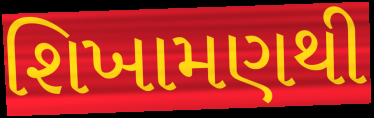
શિખામણથી